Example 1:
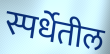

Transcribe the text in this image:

स्पर्धेतील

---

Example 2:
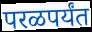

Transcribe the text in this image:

परळपर्यंत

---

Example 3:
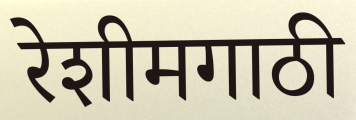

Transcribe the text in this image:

रेशीमगाठी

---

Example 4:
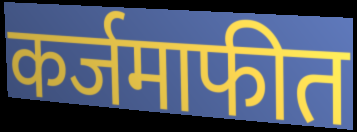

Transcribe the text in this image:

कर्जमाफीत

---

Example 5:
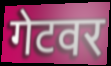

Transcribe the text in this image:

गेटवर